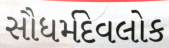
સૌધર્મદેવલોક